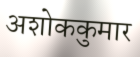
अशोककुमार